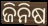
ଜିନିଷ